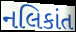
નલિકાંત